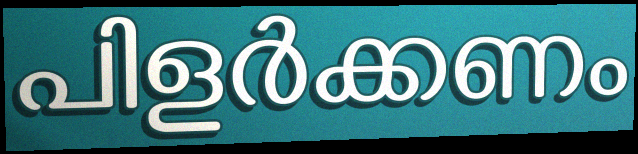
പിളർക്കണം